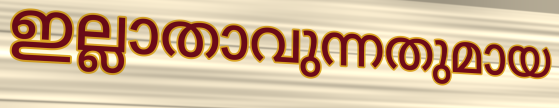
ഇല്ലാതാവുന്നതുമായ